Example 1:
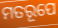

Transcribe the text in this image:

ମତରୂପେ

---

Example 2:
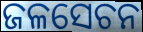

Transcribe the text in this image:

ଜଳସେଚନ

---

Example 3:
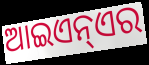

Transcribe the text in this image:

ଆଇଏନ୍ଏର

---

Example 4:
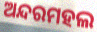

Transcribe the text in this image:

ଅନ୍ଦରମହଲ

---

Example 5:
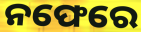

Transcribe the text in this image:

ନଫେରେ